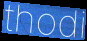
thodi